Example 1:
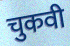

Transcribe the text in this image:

चुकवी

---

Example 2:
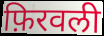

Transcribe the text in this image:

फ़िरवली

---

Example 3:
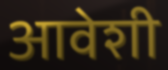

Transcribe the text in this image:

आवेशी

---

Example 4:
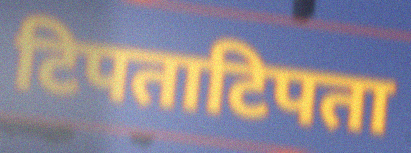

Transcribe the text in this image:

टिपताटिपता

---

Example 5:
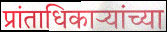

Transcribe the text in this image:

प्रांताधिकाऱ्यांच्या